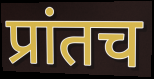
प्रांतच